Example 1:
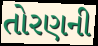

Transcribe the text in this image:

તોરણની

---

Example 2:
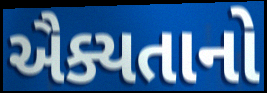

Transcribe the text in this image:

ઐક્યતાનો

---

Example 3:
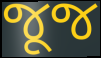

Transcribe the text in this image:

જૂજ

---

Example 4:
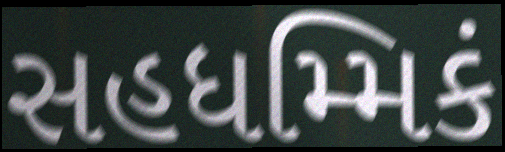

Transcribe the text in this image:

સહધમ્મિકં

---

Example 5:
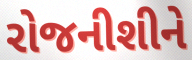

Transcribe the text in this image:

રોજનીશીને